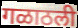
गळाठली